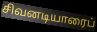
சிவனடியாரைப்